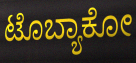
ಟೊಬ್ಯಾಕೋ